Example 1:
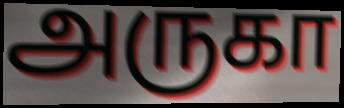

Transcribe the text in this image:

அருகா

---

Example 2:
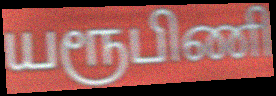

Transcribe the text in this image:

யரூபிணி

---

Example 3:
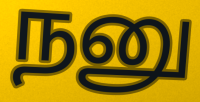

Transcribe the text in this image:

நனு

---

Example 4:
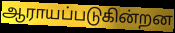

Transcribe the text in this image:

ஆராயப்படுகின்றன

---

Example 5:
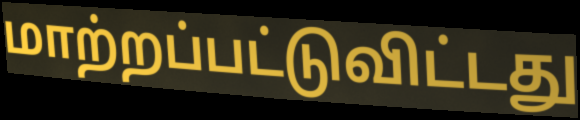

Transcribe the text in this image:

மாற்றப்பட்டுவிட்டது